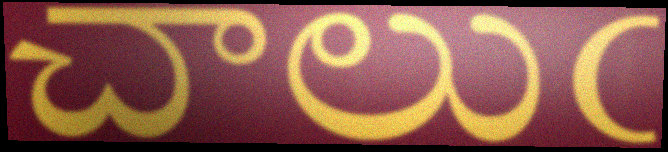
చాలుఁ